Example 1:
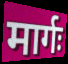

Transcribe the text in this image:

मार्गः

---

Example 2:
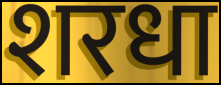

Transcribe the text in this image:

शरधा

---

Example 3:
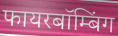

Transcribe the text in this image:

फायरबॉम्बिंग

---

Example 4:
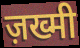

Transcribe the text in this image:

ज़ख्मी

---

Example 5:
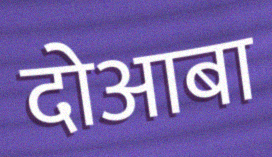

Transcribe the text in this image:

दोआबा